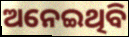
ଅନେଇଥିବି